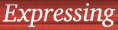
Expressing